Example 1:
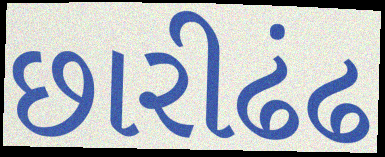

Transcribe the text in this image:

છારીઢંઢ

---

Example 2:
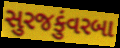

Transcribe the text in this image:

સુરજકુંવરબા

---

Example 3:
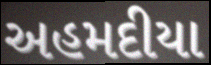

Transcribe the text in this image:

અહમદીયા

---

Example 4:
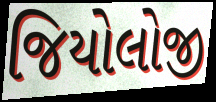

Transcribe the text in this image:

જિયોલોજી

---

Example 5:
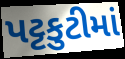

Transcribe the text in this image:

પટ્ટકુટીમાં